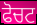
ਫੋਚਟ